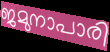
ജമുനാപാരി